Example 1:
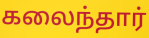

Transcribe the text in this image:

கலைந்தார்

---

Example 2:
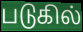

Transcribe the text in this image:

படுகில்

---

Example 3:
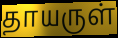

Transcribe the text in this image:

தாயருள்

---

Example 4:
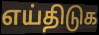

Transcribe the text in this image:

எய்திடுக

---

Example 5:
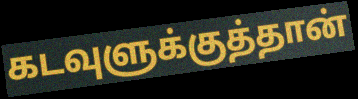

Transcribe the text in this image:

கடவுளுக்குத்தான்